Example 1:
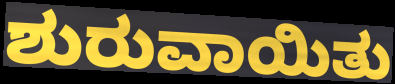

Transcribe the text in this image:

ಶುರುವಾಯಿತು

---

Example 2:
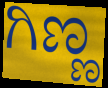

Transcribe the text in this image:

ಗಿಣ್ಣ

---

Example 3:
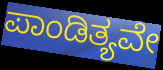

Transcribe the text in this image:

ಪಾಂಡಿತ್ಯವೇ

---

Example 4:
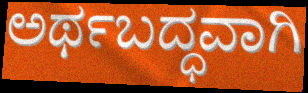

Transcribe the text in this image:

ಅರ್ಥಬದ್ಧವಾಗಿ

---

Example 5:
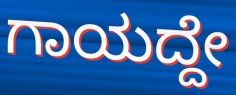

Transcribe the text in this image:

ಗಾಯದ್ದೇ